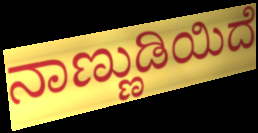
ನಾಣ್ಣುಡಿಯಿದೆ